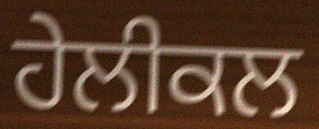
ਹੇਲੀਕਲ